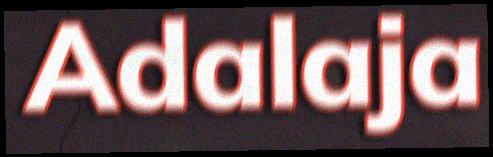
Adalaja